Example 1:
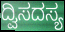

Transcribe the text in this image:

ದ್ವಿಸದಸ್ಯ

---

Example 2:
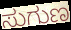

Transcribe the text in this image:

ಸುಗುಣ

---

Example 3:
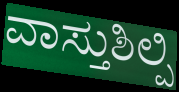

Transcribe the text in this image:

ವಾಸ್ತುಶಿಲ್ಪಿ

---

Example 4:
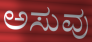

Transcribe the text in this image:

ಅಸುವು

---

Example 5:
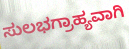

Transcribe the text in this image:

ಸುಲಭಗ್ರಾಹ್ಯವಾಗಿ